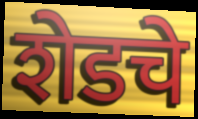
शेडचे